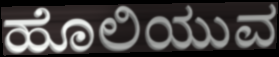
ಹೊಲಿಯುವ